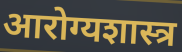
आरोग्यशास्त्र